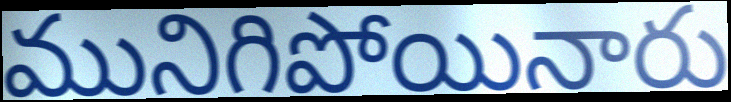
మునిగిపోయినారు